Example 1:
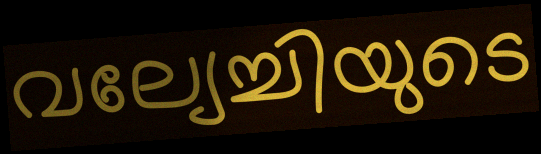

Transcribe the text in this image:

വല്യേച്ചിയുടെ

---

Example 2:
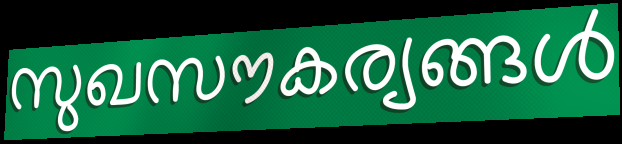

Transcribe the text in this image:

സുഖസൗകര്യങ്ങൾ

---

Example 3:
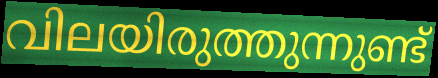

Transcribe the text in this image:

വിലയിരുത്തുന്നുണ്ട്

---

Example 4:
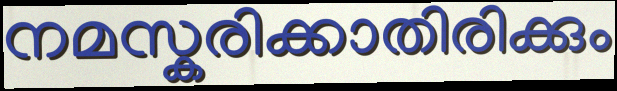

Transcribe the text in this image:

നമസ്കരിക്കാതിരിക്കും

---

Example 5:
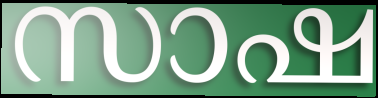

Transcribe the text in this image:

സാഷ